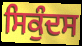
ਸਿਕੁੰਦਸ